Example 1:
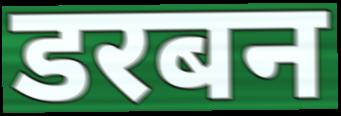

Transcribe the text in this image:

डरबन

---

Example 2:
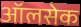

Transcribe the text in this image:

ऑलसेक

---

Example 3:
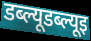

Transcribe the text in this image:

डब्ल्यूडब्ल्यूइ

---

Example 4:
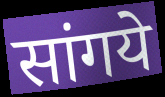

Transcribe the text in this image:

सांगये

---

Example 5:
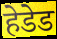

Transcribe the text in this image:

हेडेड